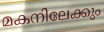
മകനിലേക്കും